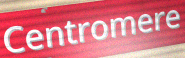
Centromere